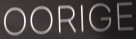
OORIGE